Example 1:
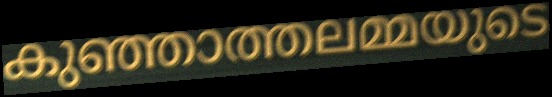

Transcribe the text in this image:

കുഞ്ഞാത്തലമ്മയുടെ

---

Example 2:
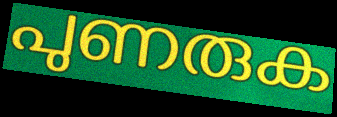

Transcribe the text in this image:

പുണരുക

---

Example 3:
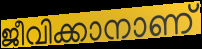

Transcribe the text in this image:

ജീവിക്കാനാണ്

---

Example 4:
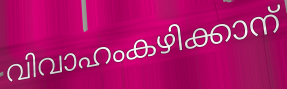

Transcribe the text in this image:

വിവാഹംകഴിക്കാന്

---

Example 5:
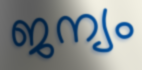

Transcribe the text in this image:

ജന്യം